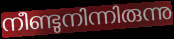
നീണ്ടുനിന്നിരുന്നു